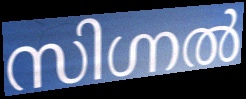
സിഗ്നൽ